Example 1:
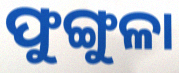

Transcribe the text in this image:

ଫୁଙ୍ଗୁଳା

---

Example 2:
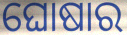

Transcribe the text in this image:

ଘୋଷାର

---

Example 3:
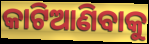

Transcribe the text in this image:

କାଟିଆଣିବାକୁ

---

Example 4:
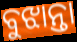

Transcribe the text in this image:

ବୁଝାନ୍ତା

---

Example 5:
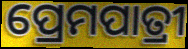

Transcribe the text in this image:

ପ୍ରେମପାତ୍ରୀ